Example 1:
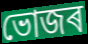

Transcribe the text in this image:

ভোজৰ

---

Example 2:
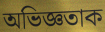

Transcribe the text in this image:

অভিজ্ঞতাক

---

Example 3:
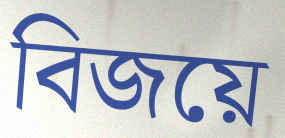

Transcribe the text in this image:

বিজয়ে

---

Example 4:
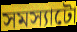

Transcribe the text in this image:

সমস্যাটো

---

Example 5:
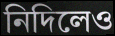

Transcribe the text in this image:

নিদিলেও